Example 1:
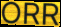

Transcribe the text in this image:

ORR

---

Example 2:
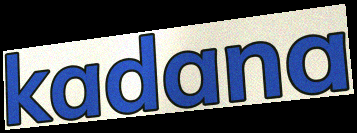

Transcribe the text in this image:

kadana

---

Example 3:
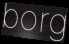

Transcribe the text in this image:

borg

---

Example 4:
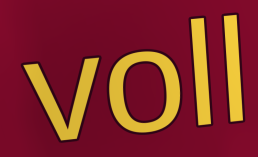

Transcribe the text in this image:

voll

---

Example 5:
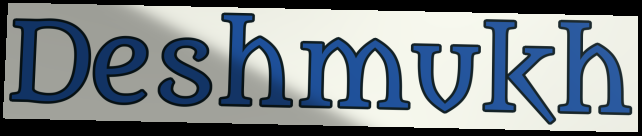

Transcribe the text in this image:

Deshmukh